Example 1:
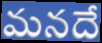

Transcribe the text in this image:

మనదే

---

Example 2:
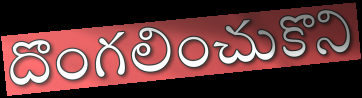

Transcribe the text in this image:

దొంగలించుకొని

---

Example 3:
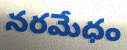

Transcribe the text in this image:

నరమేధం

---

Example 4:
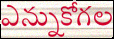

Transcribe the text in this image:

ఎన్నుకోగల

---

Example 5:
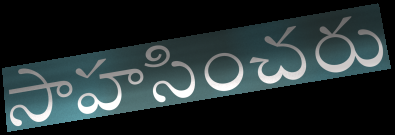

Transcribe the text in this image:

సాహసించరు